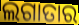
ଲଗାତାର